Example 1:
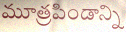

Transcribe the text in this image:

మూత్రపిండాన్ని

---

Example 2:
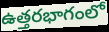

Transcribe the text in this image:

ఉత్తరభాగంలో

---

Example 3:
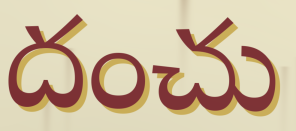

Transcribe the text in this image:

దంచు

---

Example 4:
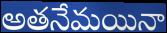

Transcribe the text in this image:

అతనేమయినా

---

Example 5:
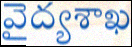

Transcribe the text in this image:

వైద్యశాఖ